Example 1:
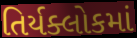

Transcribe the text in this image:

તિર્યક્લોકમાં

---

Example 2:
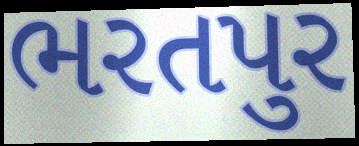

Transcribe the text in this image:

ભરતપુર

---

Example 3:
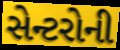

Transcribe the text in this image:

સેન્ટરોની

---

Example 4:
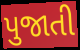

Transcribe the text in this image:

પુજાતી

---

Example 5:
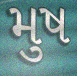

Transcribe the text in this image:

મુષ